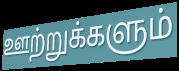
ஊற்றுக்களும்